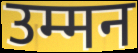
उम्मन